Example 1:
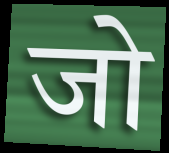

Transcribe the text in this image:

जो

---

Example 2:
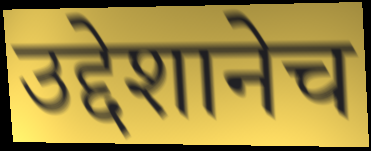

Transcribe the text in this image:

उद्देशानेच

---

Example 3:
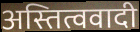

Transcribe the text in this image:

अस्तित्ववादी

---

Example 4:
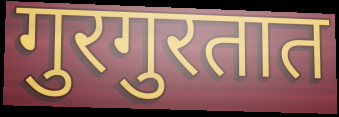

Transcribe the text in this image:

गुरगुरतात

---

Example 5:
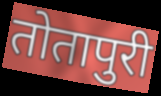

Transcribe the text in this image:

तोतापुरी